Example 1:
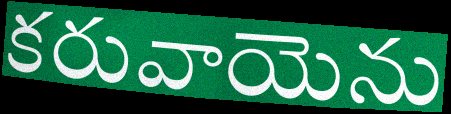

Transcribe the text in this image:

కరువాయెను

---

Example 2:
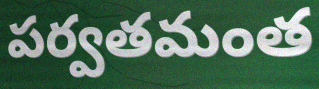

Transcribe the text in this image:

పర్వతమంత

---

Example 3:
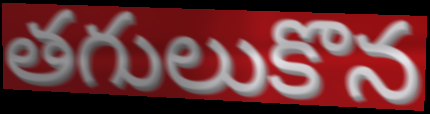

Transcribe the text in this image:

తగులుకొన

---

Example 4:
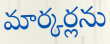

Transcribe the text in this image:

మార్కర్లను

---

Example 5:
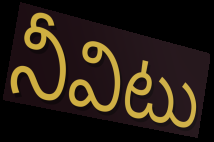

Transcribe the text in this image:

నీవిటు